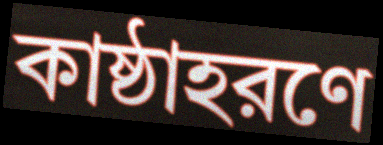
কাষ্ঠাহরণে